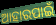
ଆହାରପାଇଁ